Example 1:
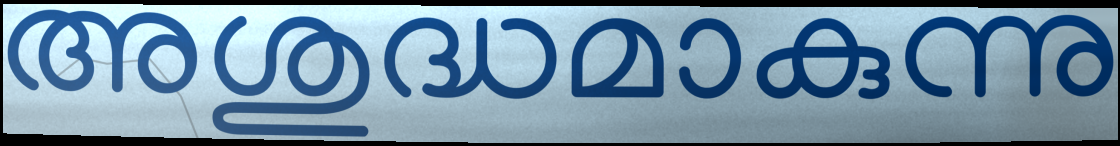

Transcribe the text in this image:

അശുദ്ധമാകുന്നു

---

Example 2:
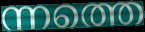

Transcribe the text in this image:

ന്നത്തെ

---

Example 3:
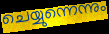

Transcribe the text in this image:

ചെയ്യുന്നെന്നും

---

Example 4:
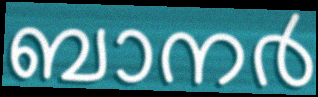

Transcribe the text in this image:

ബാനർ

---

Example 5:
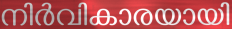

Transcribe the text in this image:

നിർവികാരയായി